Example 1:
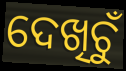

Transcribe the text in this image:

ଦେଖିଚୁଁ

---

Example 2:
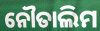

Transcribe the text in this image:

ନୌତାଲିମ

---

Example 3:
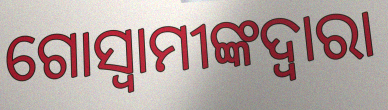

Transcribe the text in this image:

ଗୋସ୍ୱାମୀଙ୍କଦ୍ୱାରା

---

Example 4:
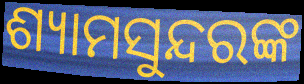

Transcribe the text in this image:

ଶ୍ୟାମସୁନ୍ଦରଙ୍କ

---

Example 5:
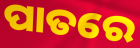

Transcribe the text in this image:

ପାତରେ